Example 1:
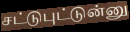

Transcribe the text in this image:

சட்டுபுட்டுன்னு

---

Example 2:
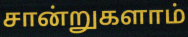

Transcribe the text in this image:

சான்றுகளாம்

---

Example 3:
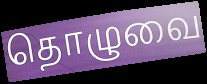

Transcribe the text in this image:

தொழுவை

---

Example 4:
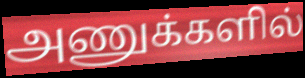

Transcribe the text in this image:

அணுக்களில்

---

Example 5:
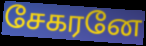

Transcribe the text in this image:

சேகரனே